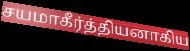
சயமாகீர்த்தியனாகிய